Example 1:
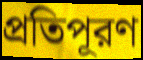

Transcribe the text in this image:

প্রতিপূরণ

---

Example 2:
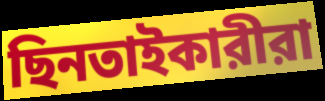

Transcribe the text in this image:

ছিনতাইকারীরা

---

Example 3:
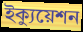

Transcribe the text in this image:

ইক্যুয়েশন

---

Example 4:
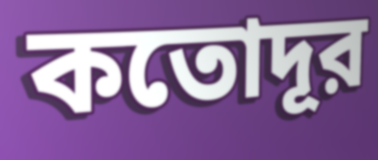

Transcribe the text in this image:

কতোদূর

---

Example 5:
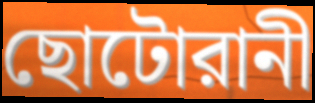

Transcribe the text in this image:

ছোটোরানী